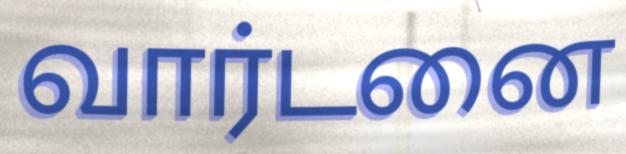
வார்டனை